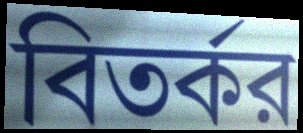
বিতর্কর